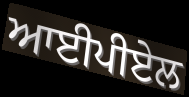
ਆਈਪੀਏਲ